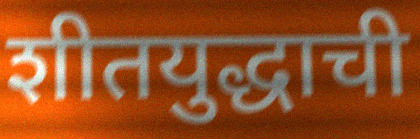
शीतयुद्धाची